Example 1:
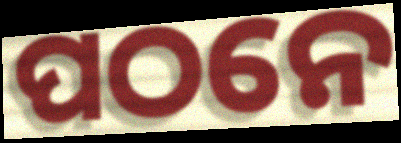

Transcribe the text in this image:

ପଠନେ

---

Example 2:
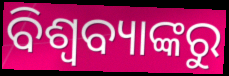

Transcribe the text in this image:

ବିଶ୍ୱବ୍ୟାଙ୍କରୁ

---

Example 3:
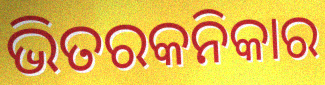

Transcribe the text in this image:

ଭିତରକନିକାର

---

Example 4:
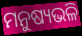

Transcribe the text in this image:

ମନୁଷ୍ୟଭଳି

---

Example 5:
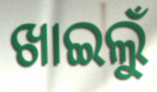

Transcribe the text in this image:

ଖାଇଲୁଁ